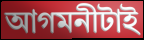
আগমনীটাই